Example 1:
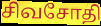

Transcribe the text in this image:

சிவசோதி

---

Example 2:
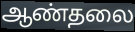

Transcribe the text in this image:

ஆண்தலை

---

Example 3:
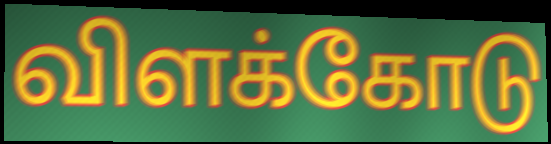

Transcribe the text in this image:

விளக்கோடு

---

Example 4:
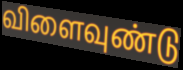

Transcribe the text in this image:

விளைவுண்டு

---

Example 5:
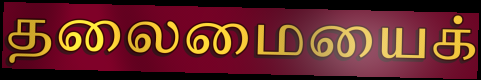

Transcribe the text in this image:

தலைமையைக்